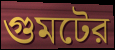
গুমটের